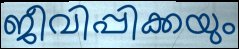
ജീവിപ്പിക്കയും